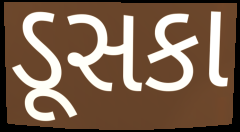
ડૂસકા